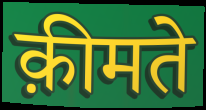
क़ीमते